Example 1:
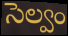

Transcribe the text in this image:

సెల్వం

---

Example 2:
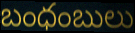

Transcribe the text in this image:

బంధంబులు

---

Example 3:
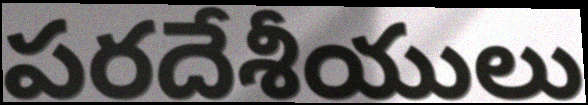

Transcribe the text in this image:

పరదేశీయులు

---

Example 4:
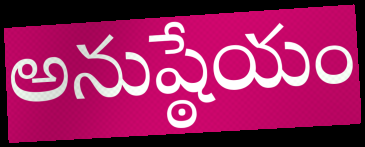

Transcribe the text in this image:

అనుష్ఠేయం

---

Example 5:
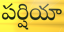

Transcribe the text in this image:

పర్షియా